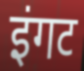
इंगट